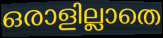
ഒരാളില്ലാതെ